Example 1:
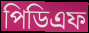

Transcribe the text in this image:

পিডিএফ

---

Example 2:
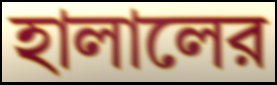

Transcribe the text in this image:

হালালের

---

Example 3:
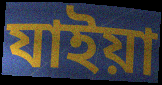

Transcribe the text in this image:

যাইয়া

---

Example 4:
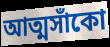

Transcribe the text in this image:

আত্মসাঁকো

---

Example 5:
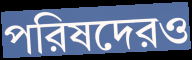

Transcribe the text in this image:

পরিষদেরও